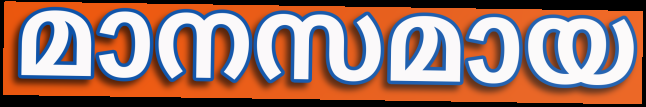
മാനസമായ